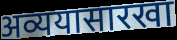
अव्ययासारखा